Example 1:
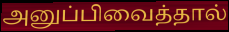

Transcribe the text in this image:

அனுப்பிவைத்தால்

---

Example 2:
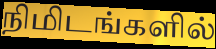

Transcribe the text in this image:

நிமிடங்களில்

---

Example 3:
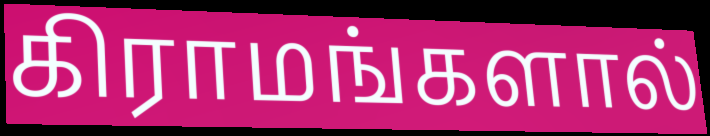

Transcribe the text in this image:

கிராமங்களால்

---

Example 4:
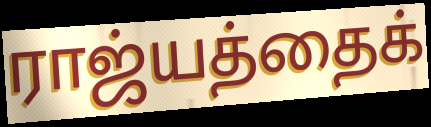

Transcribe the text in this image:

ராஜ்யத்தைக்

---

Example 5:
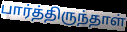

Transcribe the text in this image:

பார்த்திருந்தாள்